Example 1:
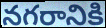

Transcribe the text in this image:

నగరానికి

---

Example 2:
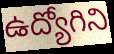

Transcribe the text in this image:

ఉద్యోగిని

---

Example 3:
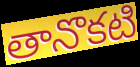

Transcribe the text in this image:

తానొకటి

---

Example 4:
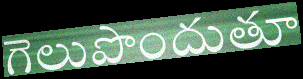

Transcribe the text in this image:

గెలుపొందుతూ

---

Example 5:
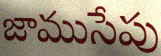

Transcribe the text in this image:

జాముసేపు